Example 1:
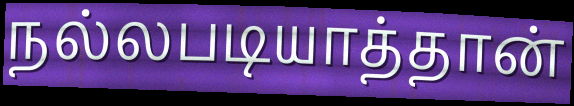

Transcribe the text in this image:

நல்லபடியாத்தான்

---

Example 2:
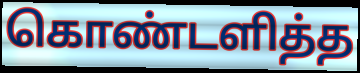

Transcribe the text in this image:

கொண்டளித்த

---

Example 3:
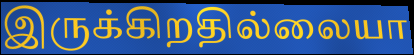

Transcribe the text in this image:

இருக்கிறதில்லையா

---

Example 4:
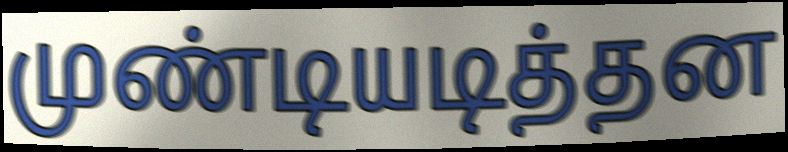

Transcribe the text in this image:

முண்டியடித்தன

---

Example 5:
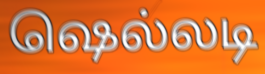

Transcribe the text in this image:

ஷெல்லடி